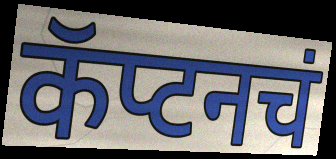
कॅप्टनचं